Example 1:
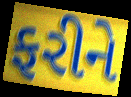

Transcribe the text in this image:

ફરીને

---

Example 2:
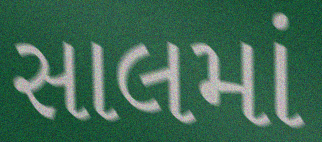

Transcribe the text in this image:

સાલમાં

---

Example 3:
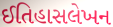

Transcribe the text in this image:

ઈતિહાસલેખન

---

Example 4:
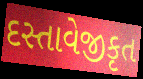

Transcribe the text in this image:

દસ્તાવેજીકૃત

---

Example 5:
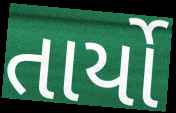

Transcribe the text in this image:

તાર્યો